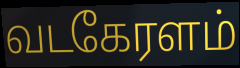
வடகேரளம்